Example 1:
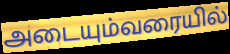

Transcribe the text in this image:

அடையும்வரையில்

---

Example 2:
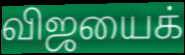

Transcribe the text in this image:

விஜயைக்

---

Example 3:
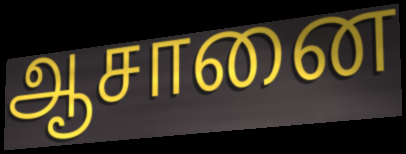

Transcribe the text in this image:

ஆசானை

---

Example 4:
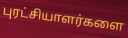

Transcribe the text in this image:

புரட்சியாளர்களை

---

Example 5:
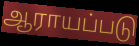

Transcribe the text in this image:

ஆராயப்படு